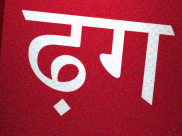
ढ़ग